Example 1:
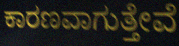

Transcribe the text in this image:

ಕಾರಣವಾಗುತ್ತೇವೆ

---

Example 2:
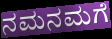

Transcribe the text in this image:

ನಮನಮಗೆ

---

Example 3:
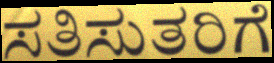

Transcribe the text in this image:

ಸತಿಸುತರಿಗೆ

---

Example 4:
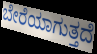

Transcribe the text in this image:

ಬೇರೆಯಾಗುತ್ತದೆ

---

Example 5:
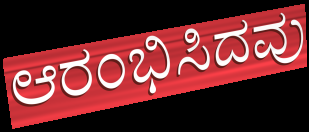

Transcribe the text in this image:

ಆರಂಭಿಸಿದವು